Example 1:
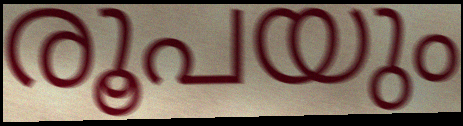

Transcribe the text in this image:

രൂപയും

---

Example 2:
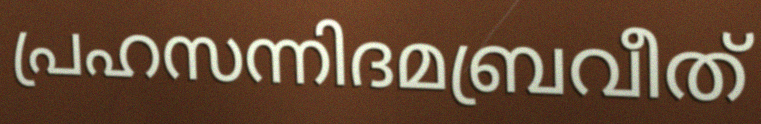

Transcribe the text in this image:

പ്രഹസന്നിദമബ്രവീത്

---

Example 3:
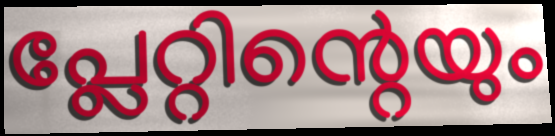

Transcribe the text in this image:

പ്ലേറ്റിന്റെയും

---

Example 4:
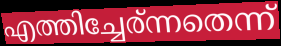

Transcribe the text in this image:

എത്തിച്ചേര്ന്നതെന്ന്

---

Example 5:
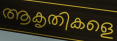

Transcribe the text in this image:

ആകൃതികളെ